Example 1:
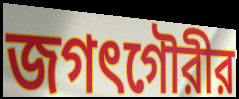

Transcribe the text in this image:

জগৎগৌরীর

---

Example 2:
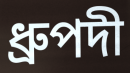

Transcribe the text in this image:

ধ্রুপদী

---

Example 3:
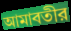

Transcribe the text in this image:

আমাবতীর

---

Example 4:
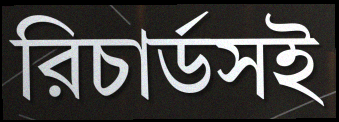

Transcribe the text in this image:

রিচার্ডসই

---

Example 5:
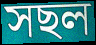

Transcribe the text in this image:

সছল